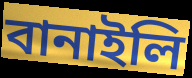
বানাইলি